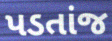
પડતાંજ